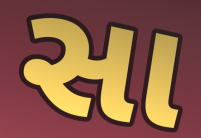
સા